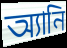
অ্যানি